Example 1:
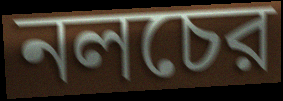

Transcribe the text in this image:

নলচের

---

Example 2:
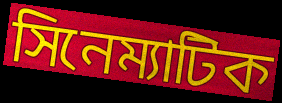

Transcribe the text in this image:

সিনেম্যাটিক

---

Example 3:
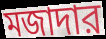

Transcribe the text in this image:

মজাদার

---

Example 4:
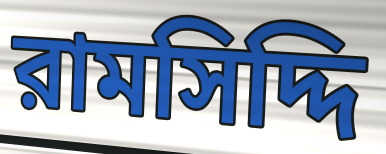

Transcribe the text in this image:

রামসিদ্দি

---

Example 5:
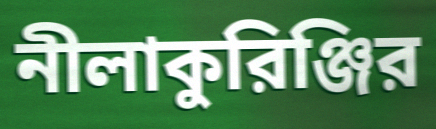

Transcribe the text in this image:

নীলাকুরিঞ্জির